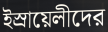
ইস্রায়েলীদের